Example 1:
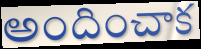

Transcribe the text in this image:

అందించాక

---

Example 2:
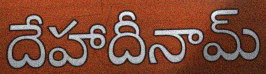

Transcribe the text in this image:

దేహాదీనామ్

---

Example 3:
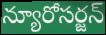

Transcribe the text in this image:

న్యూరోసర్జన్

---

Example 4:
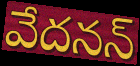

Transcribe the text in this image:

వేదనన్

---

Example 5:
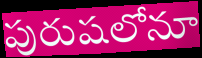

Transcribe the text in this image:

పురుషలోనూ